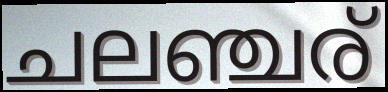
ചലഞ്ചര്